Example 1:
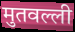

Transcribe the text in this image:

मुतवल्ली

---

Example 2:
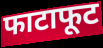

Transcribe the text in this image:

फाटाफूट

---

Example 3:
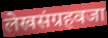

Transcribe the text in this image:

लेखसंग्रहवजा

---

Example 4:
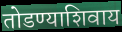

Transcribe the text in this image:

तोडण्याशिवाय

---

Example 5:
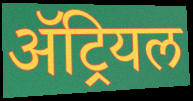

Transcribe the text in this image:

ॲट्रियल